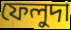
ফেলুদা